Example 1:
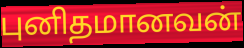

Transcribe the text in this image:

புனிதமானவன்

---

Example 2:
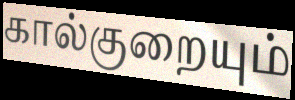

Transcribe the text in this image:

கால்குறையும்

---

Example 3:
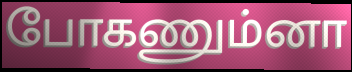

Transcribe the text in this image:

போகணும்னா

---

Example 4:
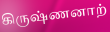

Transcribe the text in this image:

கிருஷ்ணனாற்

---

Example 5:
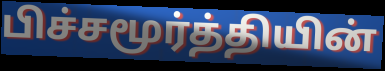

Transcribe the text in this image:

பிச்சமூர்த்தியின்